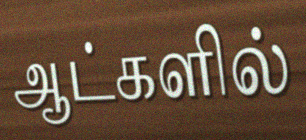
ஆட்களில்